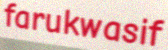
farukwasif